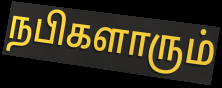
நபிகளாரும்